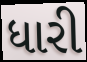
ધારી